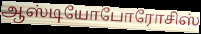
ஆஸ்டியோபோரோசிஸ்